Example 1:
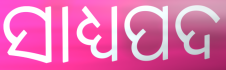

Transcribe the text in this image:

ସାଧ୍ଯପଦ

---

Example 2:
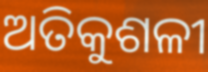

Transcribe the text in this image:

ଅତିକୁଶଳୀ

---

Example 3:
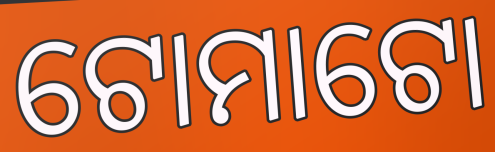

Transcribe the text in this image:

ଟୋମାଟୋ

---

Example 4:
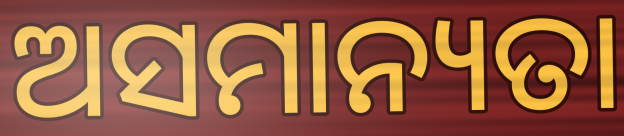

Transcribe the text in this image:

ଅସମାନ୍ୟତା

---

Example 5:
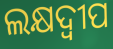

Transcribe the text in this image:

ଲକ୍ଷଦ୍ୱୀପ